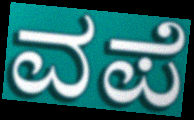
ವಪೆ